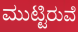
ಮುಟ್ಟಿರುವೆ